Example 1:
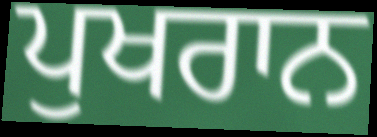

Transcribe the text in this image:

ਪੁਖਰਾਨ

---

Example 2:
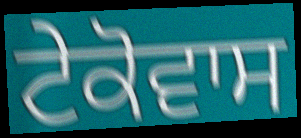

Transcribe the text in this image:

ਟੇਕੋਵਾਸ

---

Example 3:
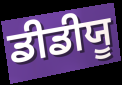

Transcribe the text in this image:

ਡੀਡੀਯੂ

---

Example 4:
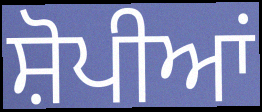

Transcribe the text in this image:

ਸ਼ੋਪੀਆਂ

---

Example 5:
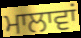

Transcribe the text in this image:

ਮਾਲਾਵਾਂ